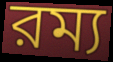
রম্য